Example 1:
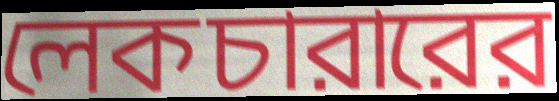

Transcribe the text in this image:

লেকচারারের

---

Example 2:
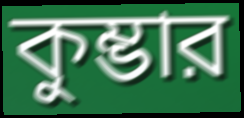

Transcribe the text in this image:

কুম্ভার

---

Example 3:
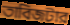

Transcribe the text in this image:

তাবিজটার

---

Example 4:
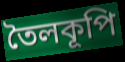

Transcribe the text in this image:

তৈলকূপি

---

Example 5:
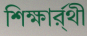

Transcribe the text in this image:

শিক্ষার্র্থী